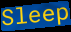
Sleep